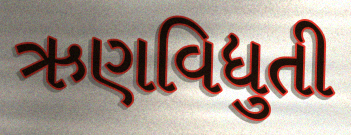
ઋણવિદ્યુતી